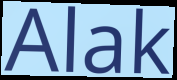
Alak